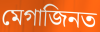
মেগাজিনত